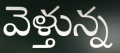
వెళ్తున్న